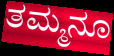
ತಮ್ಮನೂ